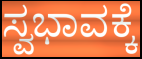
ಸ್ವಭಾವಕ್ಕೆ